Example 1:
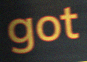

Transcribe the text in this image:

got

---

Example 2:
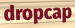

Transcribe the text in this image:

dropcap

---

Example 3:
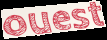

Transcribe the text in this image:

ouest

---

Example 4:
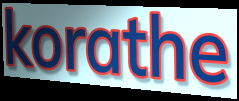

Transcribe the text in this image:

korathe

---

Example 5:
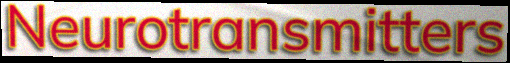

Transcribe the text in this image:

Neurotransmitters